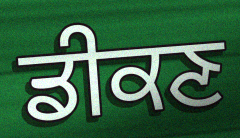
ਡੀਕਣ